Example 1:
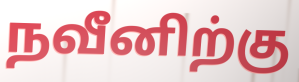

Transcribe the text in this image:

நவீனிற்கு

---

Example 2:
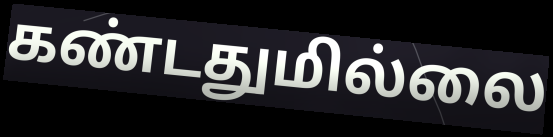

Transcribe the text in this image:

கண்டதுமில்லை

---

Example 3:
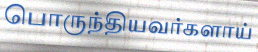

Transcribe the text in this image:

பொருந்தியவர்களாய்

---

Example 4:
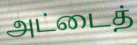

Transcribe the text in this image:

அட்டைத்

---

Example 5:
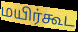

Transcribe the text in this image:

மயிர்கூட